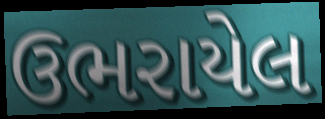
ઉભરાયેલ